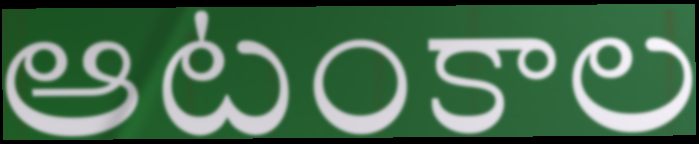
ఆటంకాల